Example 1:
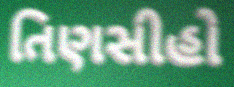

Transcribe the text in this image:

તિણસીહો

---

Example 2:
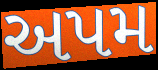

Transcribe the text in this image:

અપમ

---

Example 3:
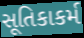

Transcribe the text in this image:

સૂતિકાકર્મ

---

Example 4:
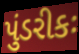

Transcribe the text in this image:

પુંડરીકઃ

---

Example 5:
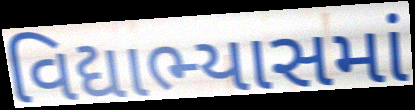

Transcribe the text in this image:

વિદ્યાભ્યાસમાં